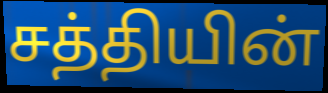
சத்தியின்